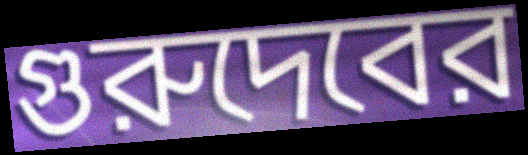
গুরুদেবের